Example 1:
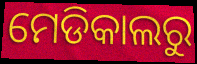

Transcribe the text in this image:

ମେଡିକାଲରୁ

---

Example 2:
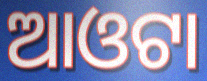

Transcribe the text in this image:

ଆଓଟା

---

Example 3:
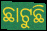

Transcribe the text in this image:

ଛାଟୁଛି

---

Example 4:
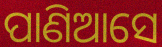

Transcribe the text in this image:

ପାଣିଆସେ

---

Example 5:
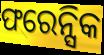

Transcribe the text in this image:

ଫରେନ୍ସିକ